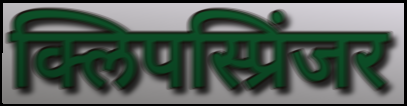
क्लिपस्प्रिंजर